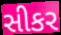
સીકર